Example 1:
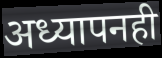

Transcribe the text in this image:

अध्यापनही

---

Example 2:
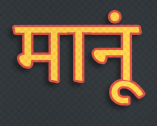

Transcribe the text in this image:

मानूं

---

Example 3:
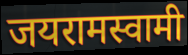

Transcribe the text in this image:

जयरामस्वामी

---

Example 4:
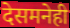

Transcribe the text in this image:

देसमनेही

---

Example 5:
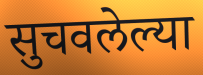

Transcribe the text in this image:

सुचवलेल्या